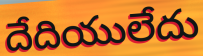
దేదియులేదు